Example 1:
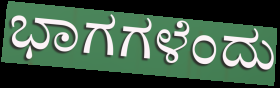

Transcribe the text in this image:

ಭಾಗಗಳೆಂದು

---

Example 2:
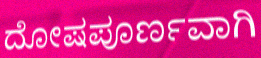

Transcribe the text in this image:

ದೋಷಪೂರ್ಣವಾಗಿ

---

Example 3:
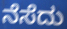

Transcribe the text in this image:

ನೆಸೆದು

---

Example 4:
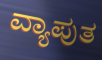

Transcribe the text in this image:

ವ್ಯಾಪುತ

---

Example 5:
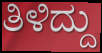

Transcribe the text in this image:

ತಿಳಿದ್ದು